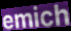
emich